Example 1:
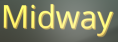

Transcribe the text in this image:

Midway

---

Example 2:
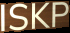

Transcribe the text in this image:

ISKP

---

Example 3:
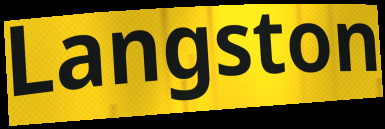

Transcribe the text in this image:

Langston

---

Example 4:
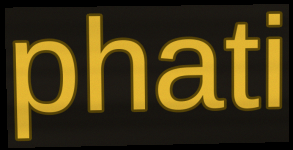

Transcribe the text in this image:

phati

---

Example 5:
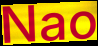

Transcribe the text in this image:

Nao